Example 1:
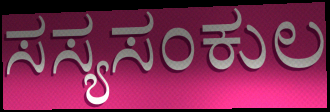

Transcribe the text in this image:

ಸಸ್ಯಸಂಕುಲ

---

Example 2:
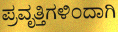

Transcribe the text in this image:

ಪ್ರವೃತ್ತಿಗಳಿಂದಾಗಿ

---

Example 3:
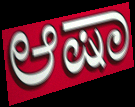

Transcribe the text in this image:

ಆಷಾ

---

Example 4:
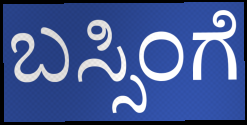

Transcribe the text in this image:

ಬಸ್ಸಿಂಗೆ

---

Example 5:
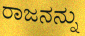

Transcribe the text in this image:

ರಾಜನನ್ನು